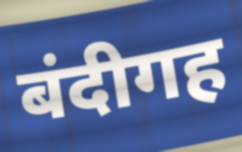
बंदीगह